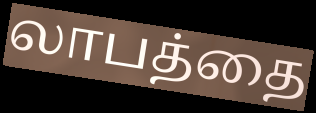
லாபத்தை